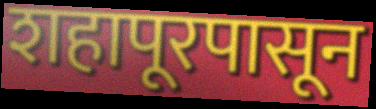
शहापूरपासून